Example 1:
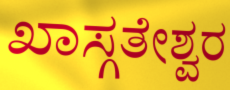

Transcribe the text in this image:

ಖಾಸ್ಗತೇಶ್ವರ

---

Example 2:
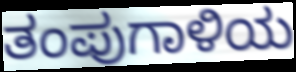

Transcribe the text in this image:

ತಂಪುಗಾಳಿಯ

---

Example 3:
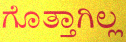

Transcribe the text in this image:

ಗೊತ್ತಾಗಿಲ್ಲ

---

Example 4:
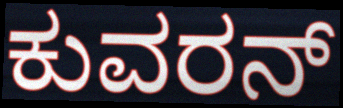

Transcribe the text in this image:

ಕುವರನ್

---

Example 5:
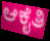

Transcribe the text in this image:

ಆಕೈತಿ